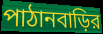
পাঠানবাড়ির